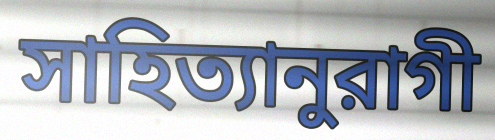
সাহিত্যানুরাগী